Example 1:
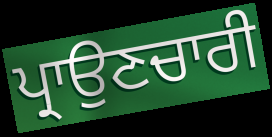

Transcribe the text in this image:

ਪ੍ਰਾਉਣਚਾਰੀ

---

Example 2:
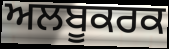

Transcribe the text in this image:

ਅਲਬੂਕਰਕ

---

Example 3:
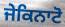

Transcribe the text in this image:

ਜੇਕਿਨਾਟੋ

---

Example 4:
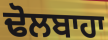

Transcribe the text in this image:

ਢੋਲਬਾਹਾ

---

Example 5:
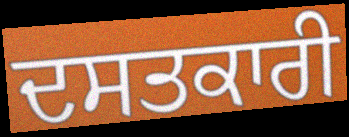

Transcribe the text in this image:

ਦਸਤਕਾਰੀ